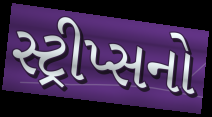
સ્ટ્રીપ્સનો